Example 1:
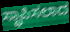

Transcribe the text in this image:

ಸ್ಥಾಪಿಸಲಾದ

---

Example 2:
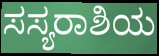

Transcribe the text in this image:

ಸಸ್ಯರಾಶಿಯ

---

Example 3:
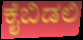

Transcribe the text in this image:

ಕೈಬಿಡಲಿ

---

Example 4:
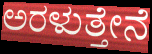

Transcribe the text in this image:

ಅರಳುತ್ತೇನೆ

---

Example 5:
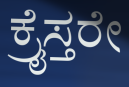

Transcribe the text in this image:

ಕ್ರೈಸ್ತರೇ